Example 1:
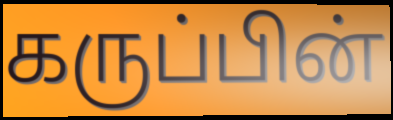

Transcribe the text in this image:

கருப்பின்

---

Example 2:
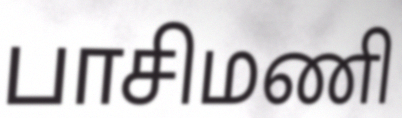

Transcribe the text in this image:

பாசிமணி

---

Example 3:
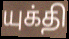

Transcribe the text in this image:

யுக்தி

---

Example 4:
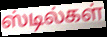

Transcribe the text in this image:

ஸ்டில்கள்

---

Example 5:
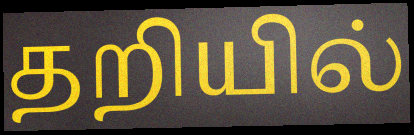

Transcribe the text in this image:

தறியில்